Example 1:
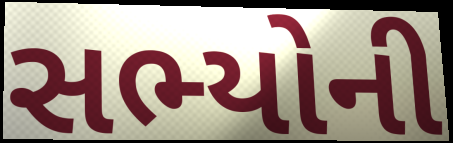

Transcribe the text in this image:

સભ્યોની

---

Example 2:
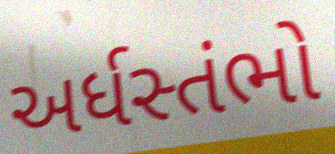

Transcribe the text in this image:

અર્ધસ્તંભો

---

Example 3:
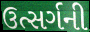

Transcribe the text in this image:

ઉત્સર્ગની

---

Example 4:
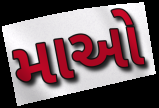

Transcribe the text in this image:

માઓ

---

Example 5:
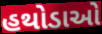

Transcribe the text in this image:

હથોડાઓ